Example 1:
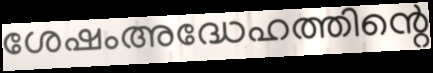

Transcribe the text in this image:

ശേഷംഅദ്ധേഹത്തിന്റെ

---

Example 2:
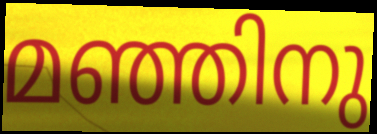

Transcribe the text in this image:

മഞ്ഞിനു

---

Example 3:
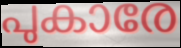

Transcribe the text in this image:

പുകാരേ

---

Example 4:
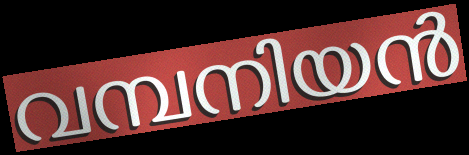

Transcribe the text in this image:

വമ്പനിയൻ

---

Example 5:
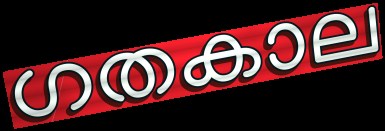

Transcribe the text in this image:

ഗതകാല